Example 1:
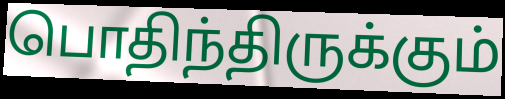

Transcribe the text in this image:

பொதிந்திருக்கும்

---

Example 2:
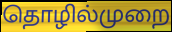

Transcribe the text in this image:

தொழில்முறை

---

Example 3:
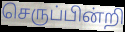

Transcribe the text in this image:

செருப்பின்றி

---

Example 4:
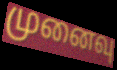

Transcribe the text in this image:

முனைவு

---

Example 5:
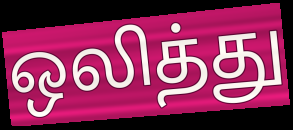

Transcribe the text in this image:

ஒலித்து